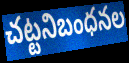
చట్టనిబంధనల